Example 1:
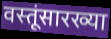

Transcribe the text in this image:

वस्तूंसारख्या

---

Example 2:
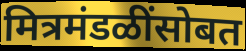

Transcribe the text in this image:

मित्रमंडळींसोबत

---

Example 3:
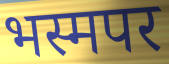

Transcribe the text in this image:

भस्मपर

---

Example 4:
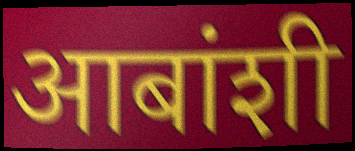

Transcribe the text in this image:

आबांशी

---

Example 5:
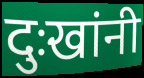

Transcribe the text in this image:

दुःखांनी